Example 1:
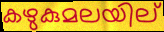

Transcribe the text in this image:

കഴുകുമലയില്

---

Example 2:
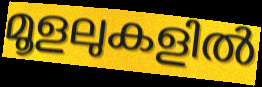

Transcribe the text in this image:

മൂളലുകളിൽ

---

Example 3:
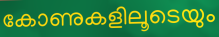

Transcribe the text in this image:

കോണുകളിലൂടെയും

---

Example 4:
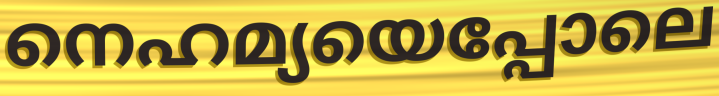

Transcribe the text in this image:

നെഹമ്യയെപ്പോലെ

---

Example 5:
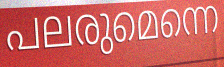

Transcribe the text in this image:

പലരുമെന്നെ